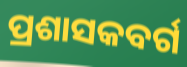
ପ୍ରଶାସକବର୍ଗ